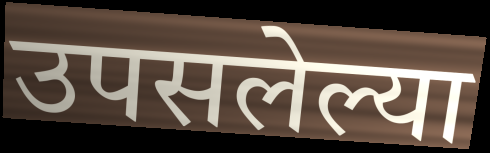
उपसलेल्या